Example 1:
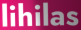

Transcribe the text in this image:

lihilas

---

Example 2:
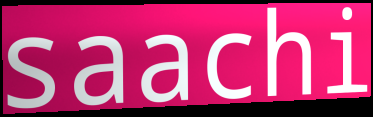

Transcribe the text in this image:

saachi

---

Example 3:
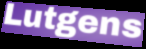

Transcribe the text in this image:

Lutgens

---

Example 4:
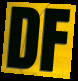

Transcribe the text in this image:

DF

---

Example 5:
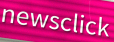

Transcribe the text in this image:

newsclick